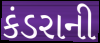
કંડરાની